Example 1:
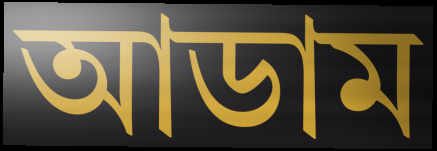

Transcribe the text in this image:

আডাম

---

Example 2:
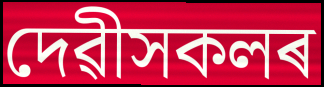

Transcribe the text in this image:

দেৱীসকলৰ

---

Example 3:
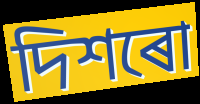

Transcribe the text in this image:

দিশৰো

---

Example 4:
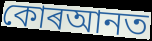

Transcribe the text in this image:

কোৰআনত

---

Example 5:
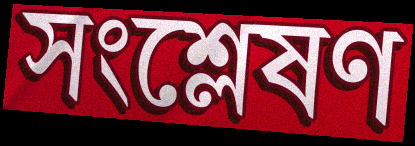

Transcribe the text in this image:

সংশ্লেষণ